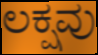
ಲಕ್ಷವು